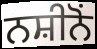
ਨਸ਼ੀਨੋਂ